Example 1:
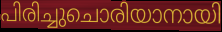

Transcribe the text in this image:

പിരിച്ചുചൊരിയാനായി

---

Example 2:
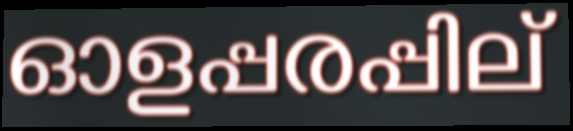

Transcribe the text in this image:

ഓളപ്പരപ്പില്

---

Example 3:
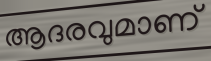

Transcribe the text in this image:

ആദരവുമാണ്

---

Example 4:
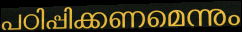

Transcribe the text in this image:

പഠിപ്പിക്കണമെന്നും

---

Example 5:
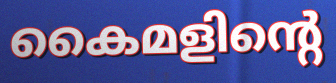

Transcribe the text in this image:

കൈമളിന്റെ